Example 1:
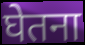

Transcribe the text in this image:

घेतना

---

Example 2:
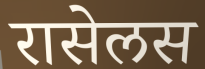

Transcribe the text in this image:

रासेलस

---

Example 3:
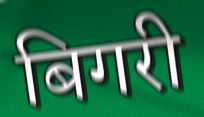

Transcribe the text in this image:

बिगरी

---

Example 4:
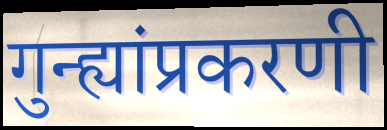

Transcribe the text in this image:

गुन्ह्यांप्रकरणी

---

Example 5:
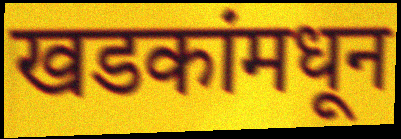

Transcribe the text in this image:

खडकांमधून